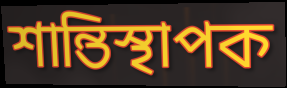
শান্তিস্থাপক